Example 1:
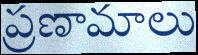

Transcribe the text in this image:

ప్రణామాలు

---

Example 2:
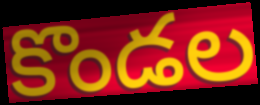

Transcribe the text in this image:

కొండల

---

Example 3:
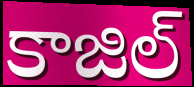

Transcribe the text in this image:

కాజిల్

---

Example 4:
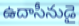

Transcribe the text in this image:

ఉదాసీనుడై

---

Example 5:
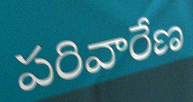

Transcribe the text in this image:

పరివారేణ